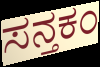
ಸನ್ತಕಂ